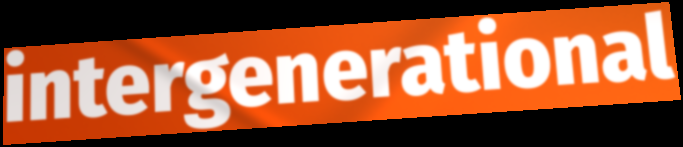
intergenerational